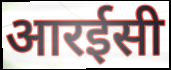
आरईसी